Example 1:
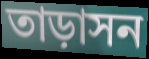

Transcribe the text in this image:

তাড়াসন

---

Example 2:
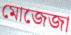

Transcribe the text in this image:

মোজেজা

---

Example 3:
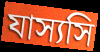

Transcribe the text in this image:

যাস্যসি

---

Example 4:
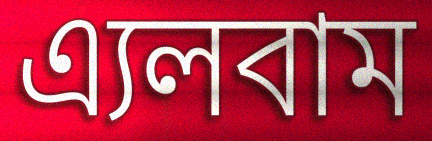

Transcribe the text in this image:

এ্যলবাম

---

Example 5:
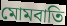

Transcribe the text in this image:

মোমবাতি